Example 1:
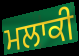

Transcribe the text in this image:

ਮਲਾਕੀ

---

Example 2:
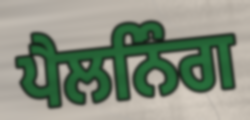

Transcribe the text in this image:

ਪੈਲਨਿੰਗ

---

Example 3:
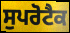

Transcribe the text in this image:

ਸੁਪਰੋਟੈਕ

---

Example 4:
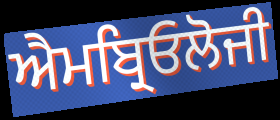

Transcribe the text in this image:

ਐਮਬ੍ਰਿਓਲੋਜੀ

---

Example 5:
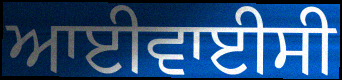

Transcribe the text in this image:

ਆਈਵਾਈਸੀ